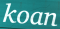
koan